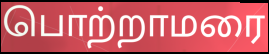
பொற்றாமரை